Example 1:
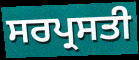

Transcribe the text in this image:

ਸਰਪ੍ਰਸਤੀ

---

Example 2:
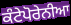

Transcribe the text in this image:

ਕੰਟੇਪੋਰੇਨੀਆ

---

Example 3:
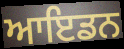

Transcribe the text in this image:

ਆਇਡਨ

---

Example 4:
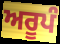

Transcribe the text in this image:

ਅਰੂਪੰ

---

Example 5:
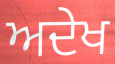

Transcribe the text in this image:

ਅਦੇਖ